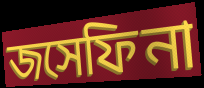
জসেফিনা